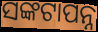
ସଙ୍କଟାପନ୍ନ